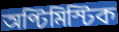
অপ্টিমিস্টিক